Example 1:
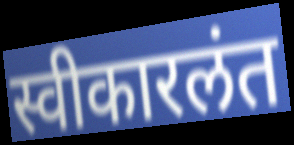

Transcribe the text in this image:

स्वीकारलंत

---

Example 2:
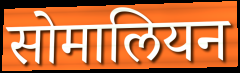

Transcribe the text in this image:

सोमालियन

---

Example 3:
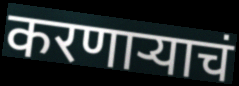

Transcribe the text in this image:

करणाऱ्याचं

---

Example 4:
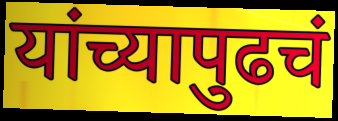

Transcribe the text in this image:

यांच्यापुढचं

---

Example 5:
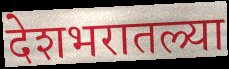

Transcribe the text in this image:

देशभरातल्या